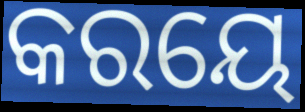
କରୟେ